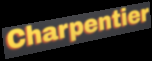
Charpentier